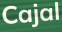
Cajal